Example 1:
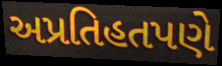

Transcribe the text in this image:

અપ્રતિહતપણે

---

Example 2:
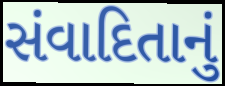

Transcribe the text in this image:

સંવાદિતાનું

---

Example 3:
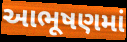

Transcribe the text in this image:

આભૂષણમાં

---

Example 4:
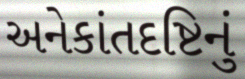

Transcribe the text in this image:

અનેકાંતદષ્ટિનું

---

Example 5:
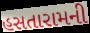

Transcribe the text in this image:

હસતારામની